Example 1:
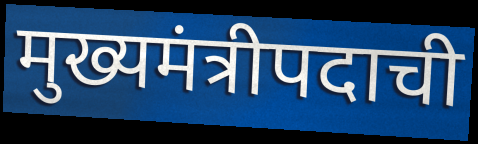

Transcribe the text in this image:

मुख्यमंत्रीपदाची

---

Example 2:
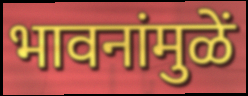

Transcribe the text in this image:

भावनांमुळें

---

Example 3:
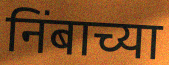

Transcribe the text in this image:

निंबाच्या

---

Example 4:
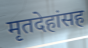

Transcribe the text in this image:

मृतदेहांसह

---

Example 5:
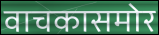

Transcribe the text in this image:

वाचकासमोर